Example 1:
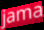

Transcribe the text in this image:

jama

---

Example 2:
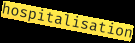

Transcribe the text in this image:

hospitalisation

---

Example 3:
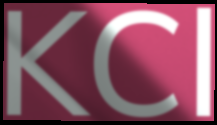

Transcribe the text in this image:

KCl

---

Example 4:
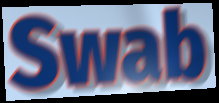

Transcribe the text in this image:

Swab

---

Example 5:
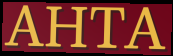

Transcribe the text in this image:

AHTA